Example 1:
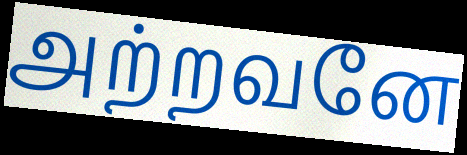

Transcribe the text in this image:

அற்றவனே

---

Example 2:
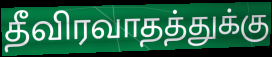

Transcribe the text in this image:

தீவிரவாதத்துக்கு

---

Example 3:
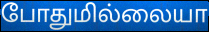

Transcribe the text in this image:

போதுமில்லையா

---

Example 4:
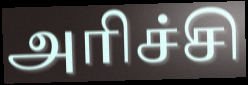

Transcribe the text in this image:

அரிச்சி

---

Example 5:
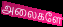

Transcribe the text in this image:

அலைகளே